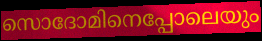
സൊദോമിനെപ്പോലെയും